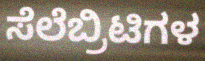
ಸೆಲೆಬ್ರಿಟಿಗಳ